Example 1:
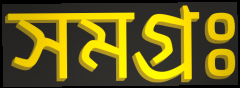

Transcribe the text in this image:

সমগ্রঃ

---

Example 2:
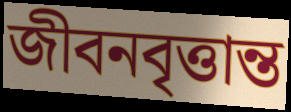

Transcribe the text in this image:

জীবনবৃত্তান্ত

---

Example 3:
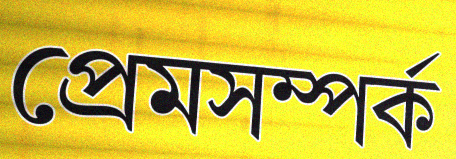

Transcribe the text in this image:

প্রেমসম্পর্ক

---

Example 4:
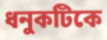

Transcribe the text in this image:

ধনুকটিকে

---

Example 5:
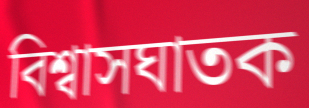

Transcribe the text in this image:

বিশ্বাসঘাতক